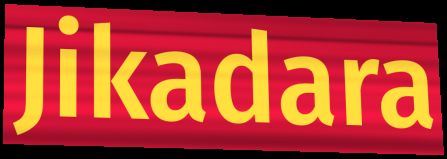
Jikadara